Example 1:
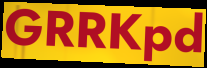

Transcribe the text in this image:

GRRKpd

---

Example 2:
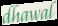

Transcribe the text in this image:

dhawal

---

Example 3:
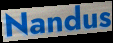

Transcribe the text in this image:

Nandus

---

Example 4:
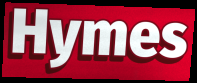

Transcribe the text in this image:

Hymes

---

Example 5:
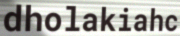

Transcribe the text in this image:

dholakiahc